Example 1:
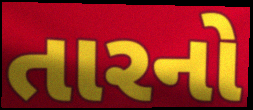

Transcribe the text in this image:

તારનો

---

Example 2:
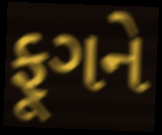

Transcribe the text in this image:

ફૂગને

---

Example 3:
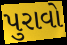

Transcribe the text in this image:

પુરાવો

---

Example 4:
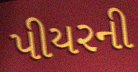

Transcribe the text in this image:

પીયરની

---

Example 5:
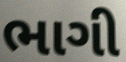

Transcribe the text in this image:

ભાગી